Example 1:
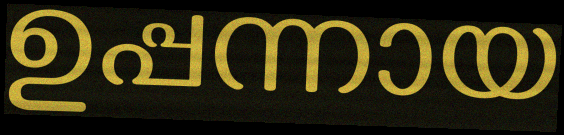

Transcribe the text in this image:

ഉപ്പന്നായ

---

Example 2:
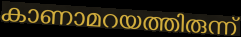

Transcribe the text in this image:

കാണാമറയത്തിരുന്ന്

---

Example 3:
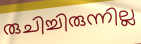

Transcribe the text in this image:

രുചിച്ചിരുന്നില്ല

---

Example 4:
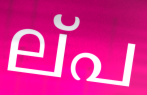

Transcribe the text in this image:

ല്‌പ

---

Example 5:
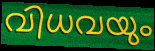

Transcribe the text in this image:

വിധവയും